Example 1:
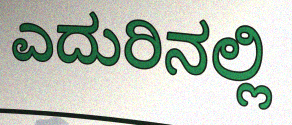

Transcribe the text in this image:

ಎದುರಿನಲ್ಲಿ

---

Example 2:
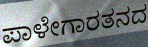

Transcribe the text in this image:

ಪಾಳೇಗಾರತನದ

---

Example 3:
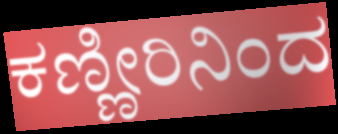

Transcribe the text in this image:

ಕಣ್ಣೀರಿನಿಂದ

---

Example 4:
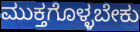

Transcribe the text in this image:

ಮುಕ್ತಗೊಳ್ಳಬೇಕು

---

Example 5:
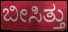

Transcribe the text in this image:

ಬೀಸಿತ್ತು